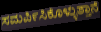
ಸಮರ್ಪಿಸಿಕೊಳ್ಳುತ್ತಾನೆ